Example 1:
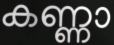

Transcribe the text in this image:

കണ്ണാ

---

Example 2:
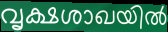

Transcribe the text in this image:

വൃക്ഷശാഖയിൽ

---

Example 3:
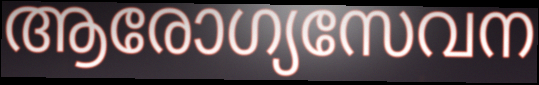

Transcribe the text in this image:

ആരോഗ്യസേവന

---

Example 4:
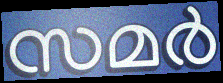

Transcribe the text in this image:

സമർ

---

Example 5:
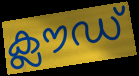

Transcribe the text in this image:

ക്ലൗഡ്